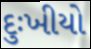
દુઃખીયો